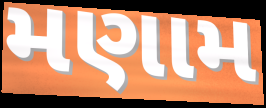
મણામ